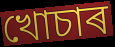
খোচাৰ